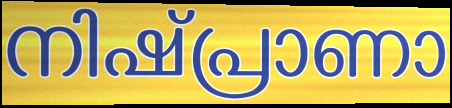
നിഷ്പ്രാണാ